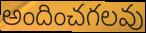
అందించగలవు